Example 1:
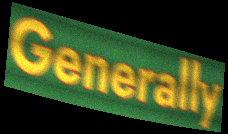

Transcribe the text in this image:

Generally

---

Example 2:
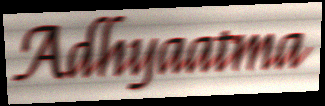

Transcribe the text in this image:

Adhyaatma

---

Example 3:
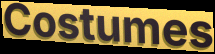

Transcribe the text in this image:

Costumes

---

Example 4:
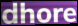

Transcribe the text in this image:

dhore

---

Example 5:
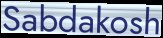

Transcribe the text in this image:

Sabdakosh